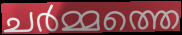
ചർമ്മത്തെ